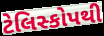
ટેલિસ્કોપથી